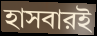
হাসবারই